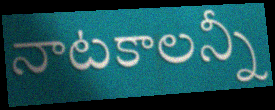
నాటకాలన్నీ